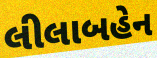
લીલાબહેન